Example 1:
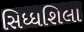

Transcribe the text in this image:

સિધ્ધશિલા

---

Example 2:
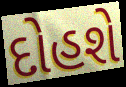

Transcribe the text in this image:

દોહશે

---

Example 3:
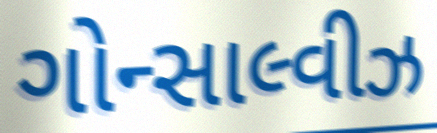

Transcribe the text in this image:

ગોન્સાલ્વીઝ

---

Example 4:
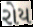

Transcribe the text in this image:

રોય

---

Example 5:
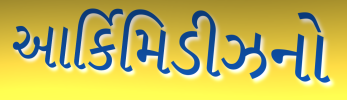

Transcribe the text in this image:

આર્કિમિડીઝનો